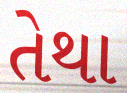
તેથા